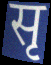
सृ